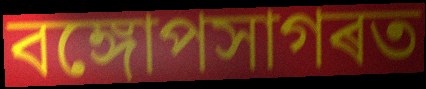
বঙ্গোপসাগৰত